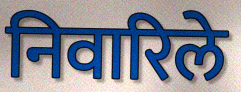
निवारिले